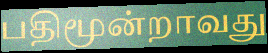
பதிமூன்றாவது